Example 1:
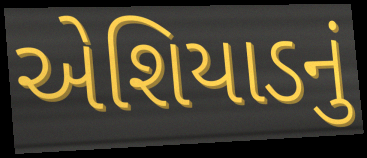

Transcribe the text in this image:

એશિયાડનું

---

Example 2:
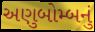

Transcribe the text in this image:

અણુબોમ્બનું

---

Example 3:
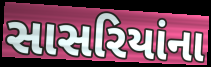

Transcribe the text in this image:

સાસરિયાંના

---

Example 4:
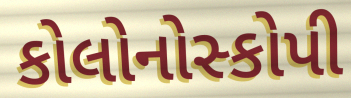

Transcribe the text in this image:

કોલોનોસ્કોપી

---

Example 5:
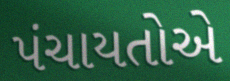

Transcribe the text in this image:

પંચાયતોએ